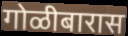
गोळीबारास